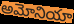
అమోనియా